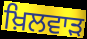
ਖ਼ਿਲਵਾੜ